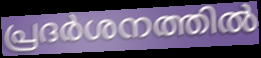
പ്രദർശനത്തിൽ